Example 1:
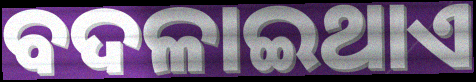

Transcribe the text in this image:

ବଦଳାଇଥାଏ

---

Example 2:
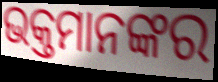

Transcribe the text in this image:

ଭକ୍ତମାନଙ୍କର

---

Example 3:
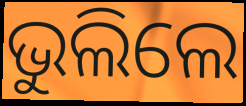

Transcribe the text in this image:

ଭୁଲିଲେ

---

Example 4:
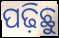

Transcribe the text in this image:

ପଢ଼ିଛୁ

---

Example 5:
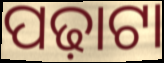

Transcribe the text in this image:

ପଢ଼ାଟା